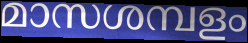
മാസശമ്പളം